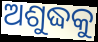
ଅଶୁଦ୍ଧକୁ